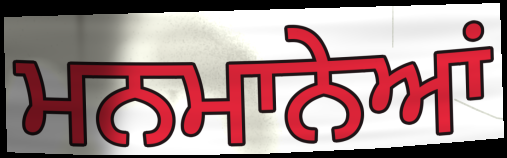
ਮਨਮਾਨੇਆਂ